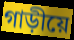
গাড়ীয়ে